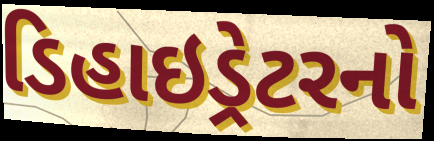
ડિહાઇડ્રેટરનો